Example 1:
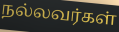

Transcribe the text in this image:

நல்லவர்கள்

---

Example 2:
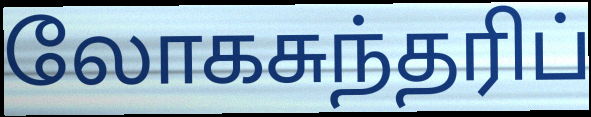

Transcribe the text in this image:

லோகசுந்தரிப்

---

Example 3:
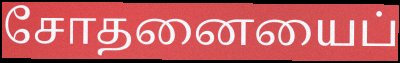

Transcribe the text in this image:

சோதனையைப்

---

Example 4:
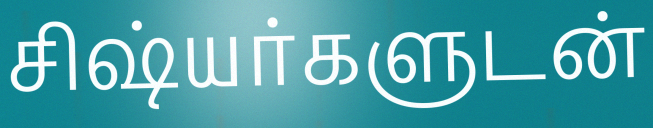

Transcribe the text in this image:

சிஷ்யர்களுடன்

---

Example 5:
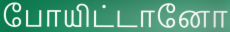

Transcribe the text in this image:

போயிட்டானோ